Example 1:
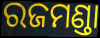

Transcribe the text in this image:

ରଜମଣ୍ଡା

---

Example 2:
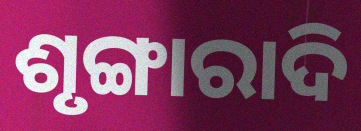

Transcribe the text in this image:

ଶୃଙ୍ଗାରାଦି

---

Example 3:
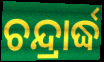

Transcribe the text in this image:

ଚନ୍ଦ୍ରାର୍ଦ୍ଧ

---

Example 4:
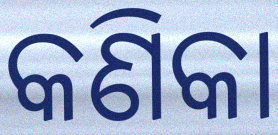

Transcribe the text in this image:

କଣିକା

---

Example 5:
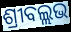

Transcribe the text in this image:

ଶ୍ରୀବଲ୍ଲଭ